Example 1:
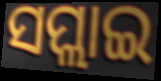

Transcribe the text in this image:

ସପ୍ଲାଇ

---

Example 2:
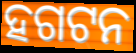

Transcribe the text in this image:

ହଗଟନ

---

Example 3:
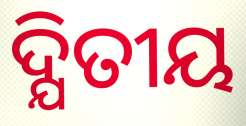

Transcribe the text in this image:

ଦ୍ଯିତୀୟ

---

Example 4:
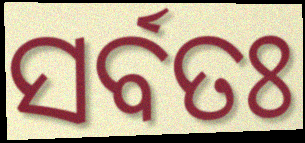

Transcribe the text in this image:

ସର୍ବତଃ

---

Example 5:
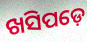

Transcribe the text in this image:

ଖସିପଡ଼େ